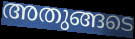
അതുങ്ങടെ